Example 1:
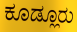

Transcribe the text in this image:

ಕೂಡ್ಲೂರು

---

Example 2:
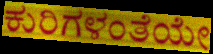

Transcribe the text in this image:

ಕುರಿಗಳಂತೆಯೇ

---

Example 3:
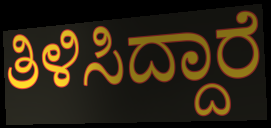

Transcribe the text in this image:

ತಿಳಿಸಿದ್ದಾರೆ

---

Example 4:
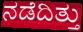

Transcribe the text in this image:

ನಡೆದಿತ್ತು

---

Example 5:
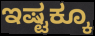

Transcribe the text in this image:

ಇಷ್ಟಕ್ಕೂ